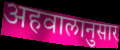
अहवालानुसार